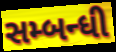
સમ્બન્ધી